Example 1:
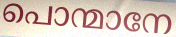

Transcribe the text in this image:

പൊന്മാനേ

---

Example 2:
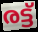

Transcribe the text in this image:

രട്ട്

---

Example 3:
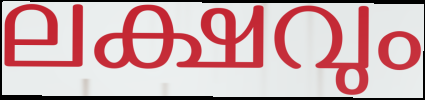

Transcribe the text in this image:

ലക്ഷവും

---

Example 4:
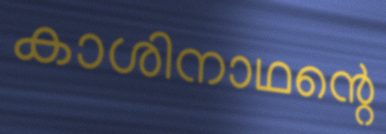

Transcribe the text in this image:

കാശിനാഥന്റെ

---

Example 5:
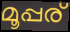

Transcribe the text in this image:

മൂപ്പര്